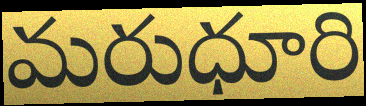
మరుధూరి